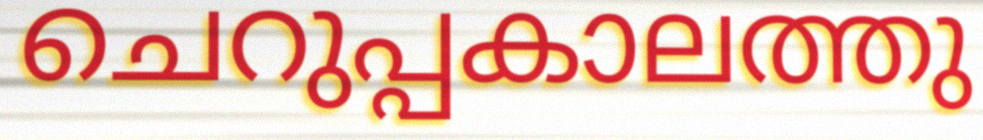
ചെറുപ്പകാലത്തു